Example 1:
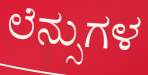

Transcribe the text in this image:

ಲೆನ್ಸುಗಳ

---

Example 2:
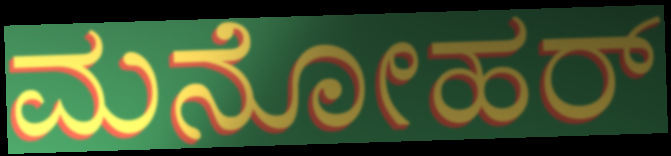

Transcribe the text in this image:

ಮನೋಹರ್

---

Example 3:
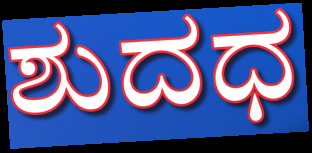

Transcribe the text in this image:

ಶುದಧ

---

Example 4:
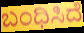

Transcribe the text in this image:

ಬಂಧಿಸಿದೆ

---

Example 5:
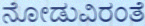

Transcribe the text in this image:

ನೋಡುವಿರಂತೆ